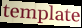
template